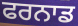
ਫਰਨਾਡ